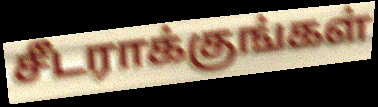
சீடராக்குங்கள்